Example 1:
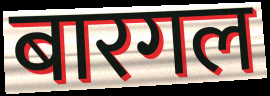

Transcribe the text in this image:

बारगल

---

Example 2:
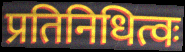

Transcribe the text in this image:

प्रतिनिधित्वः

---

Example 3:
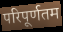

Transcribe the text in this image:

परिपूर्णतम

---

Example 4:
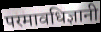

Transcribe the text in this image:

परमावधिज्ञानी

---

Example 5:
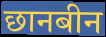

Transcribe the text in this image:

छानबीन